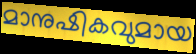
മാനുഷികവുമായ